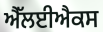
ਐੱਲਈਐਕਸ